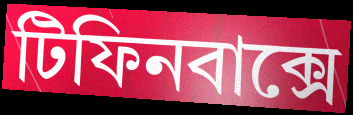
টিফিনবাক্সে